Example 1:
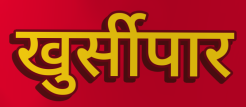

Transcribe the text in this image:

खुर्सीपार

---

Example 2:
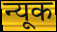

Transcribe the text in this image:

न्यूक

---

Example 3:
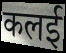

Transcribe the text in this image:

कलई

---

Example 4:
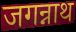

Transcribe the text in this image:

जगन्नाथ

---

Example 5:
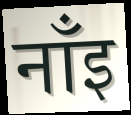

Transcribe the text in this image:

नाँइ